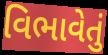
વિભાવેતું